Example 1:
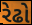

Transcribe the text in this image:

રેઢો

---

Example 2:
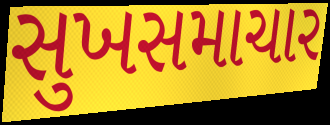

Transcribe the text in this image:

સુખસમાચાર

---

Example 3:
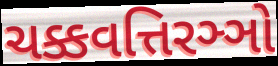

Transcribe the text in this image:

ચક્કવત્તિરઞ્ઞો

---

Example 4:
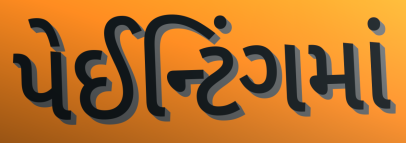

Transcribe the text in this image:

પેઈન્ટિંગમાં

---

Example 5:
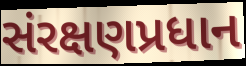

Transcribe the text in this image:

સંરક્ષણપ્રધાન